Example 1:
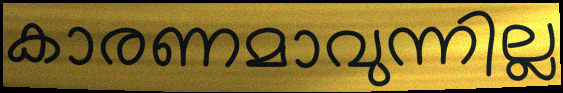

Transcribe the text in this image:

കാരണമാവുന്നില്ല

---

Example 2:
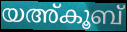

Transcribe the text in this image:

യഅ്കൂബ്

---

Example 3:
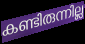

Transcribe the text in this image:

കണ്ടിരുന്നില്ല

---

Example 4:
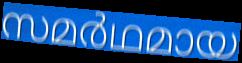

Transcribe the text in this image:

സമർഥമായ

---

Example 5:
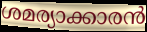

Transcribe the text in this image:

ശമര്യാക്കാരൻ